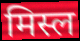
मिस्ल